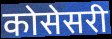
कोसेसरी